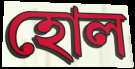
হোল